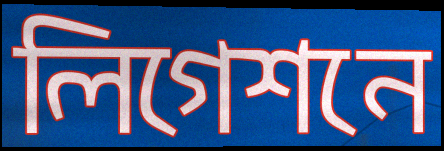
লিগেশনে